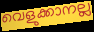
വെളുക്കാനല്ല